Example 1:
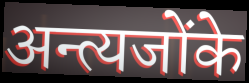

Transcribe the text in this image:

अन्त्यजोंके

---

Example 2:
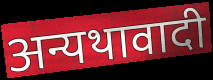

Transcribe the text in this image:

अन्यथावादी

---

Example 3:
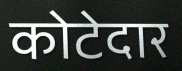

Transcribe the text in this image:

कोटेदार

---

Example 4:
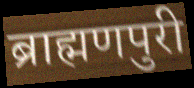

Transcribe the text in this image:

ब्राह्मणपुरी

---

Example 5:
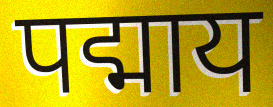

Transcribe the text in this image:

पद्माय